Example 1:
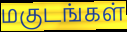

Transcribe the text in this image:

மகுடங்கள்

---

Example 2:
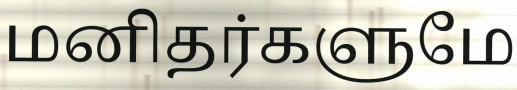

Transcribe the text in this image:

மனிதர்களுமே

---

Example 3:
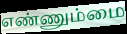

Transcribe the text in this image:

எண்ணும்மை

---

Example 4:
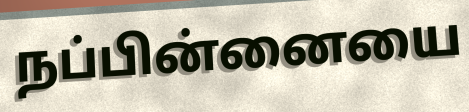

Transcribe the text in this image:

நப்பின்னையை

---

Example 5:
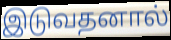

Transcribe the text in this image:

இடுவதனால்